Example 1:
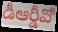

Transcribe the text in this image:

డీఆర్డీవో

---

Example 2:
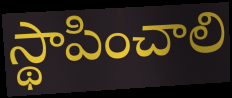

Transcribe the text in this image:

స్థాపించాలి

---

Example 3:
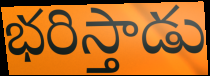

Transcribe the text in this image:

భరిస్తాడు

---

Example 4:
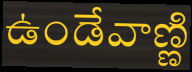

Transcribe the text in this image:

ఉండేవాణ్ణి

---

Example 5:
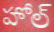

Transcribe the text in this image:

హోల్